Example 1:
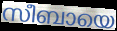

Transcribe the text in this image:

സീബായെ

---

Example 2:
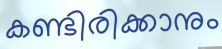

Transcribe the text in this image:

കണ്ടിരിക്കാനും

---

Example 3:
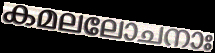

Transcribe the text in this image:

കമലലോചനാഃ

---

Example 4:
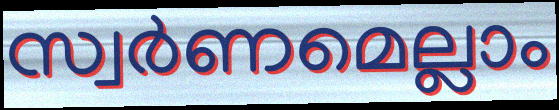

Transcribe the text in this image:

സ്വർണമെല്ലാം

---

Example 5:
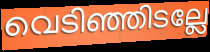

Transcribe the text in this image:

വെടിഞ്ഞിടല്ലേ